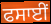
ਫਸਾਈਂ